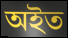
অইত